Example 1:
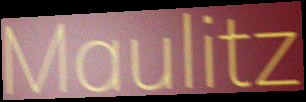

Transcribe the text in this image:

Maulitz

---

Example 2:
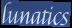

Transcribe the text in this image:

lunatics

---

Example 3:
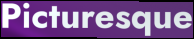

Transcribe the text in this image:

Picturesque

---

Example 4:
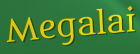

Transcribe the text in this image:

Megalai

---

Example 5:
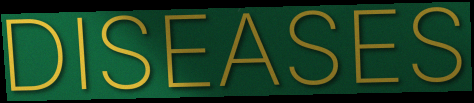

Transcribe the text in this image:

DISEASES